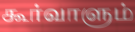
கூர்வாளும்